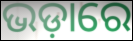
ଭଡ଼ାରେ